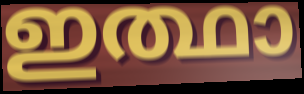
ഇത്ഥാ